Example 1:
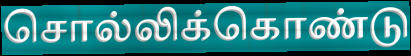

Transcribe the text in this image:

சொல்லிக்கொண்டு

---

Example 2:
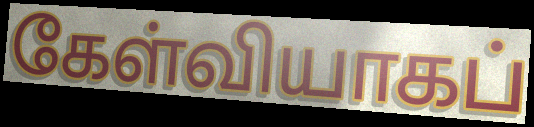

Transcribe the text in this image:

கேள்வியாகப்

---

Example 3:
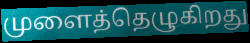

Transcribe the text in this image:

முளைத்தெழுகிறது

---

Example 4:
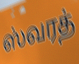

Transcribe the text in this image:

ஸ்வரத்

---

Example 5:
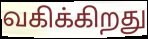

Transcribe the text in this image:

வகிக்கிறது